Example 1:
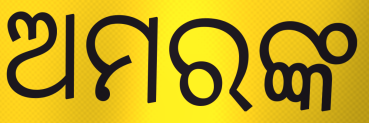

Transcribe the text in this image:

ଅମରଙ୍କ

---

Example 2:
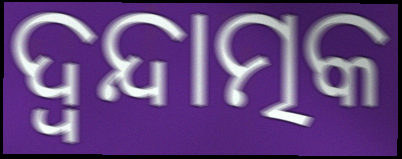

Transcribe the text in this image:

ଦ୍ୱନ୍ଦାତ୍ମକ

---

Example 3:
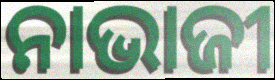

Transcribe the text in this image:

ନାଭାଜୀ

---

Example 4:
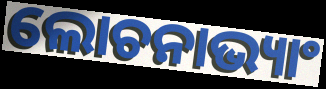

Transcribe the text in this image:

ଲୋଚନାଭ୍ୟାଂ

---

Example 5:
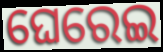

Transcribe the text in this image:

ଘେରେଇ